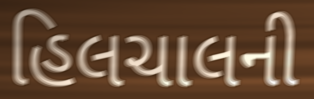
હિલચાલની